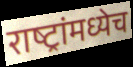
राष्ट्रांमध्येच